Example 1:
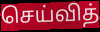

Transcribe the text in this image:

செய்வித்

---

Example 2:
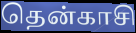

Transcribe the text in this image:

தென்காசி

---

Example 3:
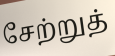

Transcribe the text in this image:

சேற்றுத்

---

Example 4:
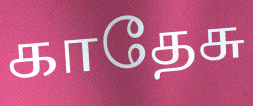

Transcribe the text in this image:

காதேசு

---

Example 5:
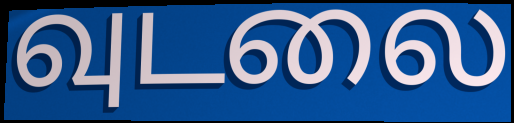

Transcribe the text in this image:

வுடலை